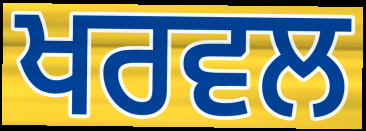
ਖਰਵਲ